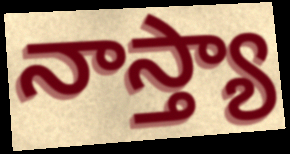
నాస్త్యా